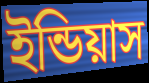
ইন্ডিয়াস